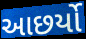
આછર્યો